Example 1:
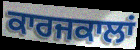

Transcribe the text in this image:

ਕਾਰਜਕਾਲਾਂ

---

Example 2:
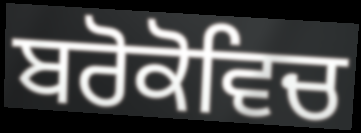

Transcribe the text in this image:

ਬਰੋਕੋਵਿਚ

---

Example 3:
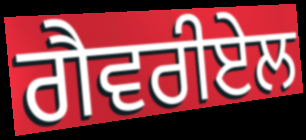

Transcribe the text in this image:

ਗੈਵਰੀਏਲ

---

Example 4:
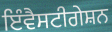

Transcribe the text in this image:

ਇੰਵੈਸਟੀਗੇਸ਼ਨ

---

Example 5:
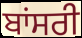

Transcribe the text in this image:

ਬਾਂਸਰੀ